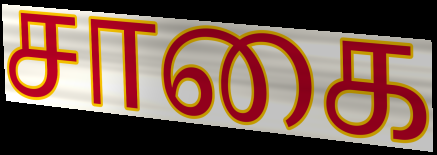
சாகை